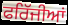
ਫਰਿੱਜੀਆਂ